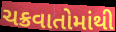
ચક્રવાતોમાંથી